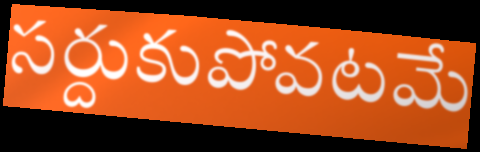
సర్దుకుపోవటమే